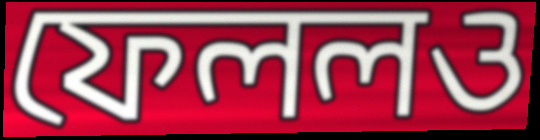
ফেললও